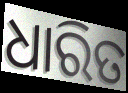
ଧାରିତ